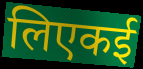
लिएकई